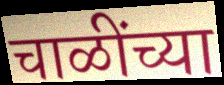
चाळींच्या